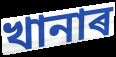
খানাৰ